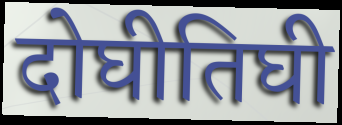
दोघीतिघी